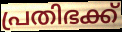
പ്രതിഭക്ക്